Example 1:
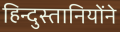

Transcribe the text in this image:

हिन्दुस्तानियोंने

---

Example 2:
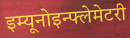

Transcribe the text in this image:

इम्यूनोइन्फ्लेमेटरी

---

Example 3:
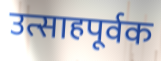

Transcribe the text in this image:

उत्साहपूर्वक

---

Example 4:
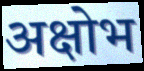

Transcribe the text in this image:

अक्षोभ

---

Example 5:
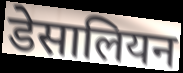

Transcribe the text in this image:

डेसालियन